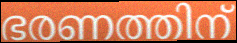
ഭരണത്തിന്